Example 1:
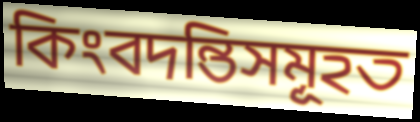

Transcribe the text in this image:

কিংবদন্তিসমূহত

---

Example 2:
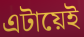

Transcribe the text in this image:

এটায়েই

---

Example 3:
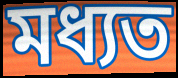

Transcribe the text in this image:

মধ্যত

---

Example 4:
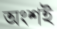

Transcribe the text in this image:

অংশই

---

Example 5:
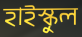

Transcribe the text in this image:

হাইস্কুল